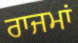
ਰਾਜਮਾਂ